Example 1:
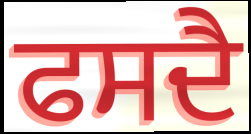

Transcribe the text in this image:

ਫਸਦੈ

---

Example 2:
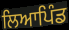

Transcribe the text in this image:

ਲਿਆਪਿੰਡ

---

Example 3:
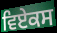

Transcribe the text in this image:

ਵਿਏਕਸ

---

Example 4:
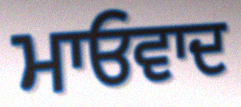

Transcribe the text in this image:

ਮਾਓਵਾਦ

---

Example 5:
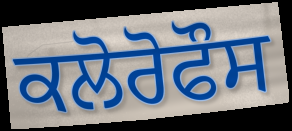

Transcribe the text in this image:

ਕਲੋਰੋਫੌਸ